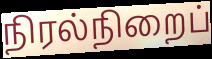
நிரல்நிறைப்